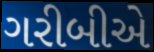
ગરીબીએ